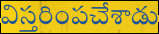
విస్తరింపచేశాడు